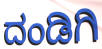
ದಂಡಿಗಿ